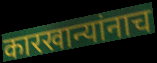
कारखान्यांनाच